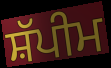
ਸ਼ੱਪੀਮ